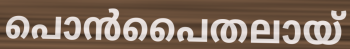
പൊൻപൈതലായ്